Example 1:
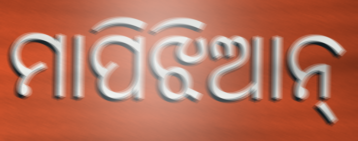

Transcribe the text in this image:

ମାପିଝିଆନ୍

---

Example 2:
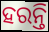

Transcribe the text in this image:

ହରନ୍ତି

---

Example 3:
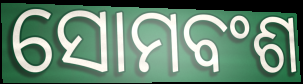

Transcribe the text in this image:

ସୋମବଂଶ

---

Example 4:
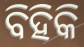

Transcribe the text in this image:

ବିହିକି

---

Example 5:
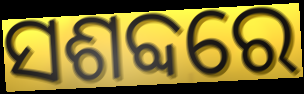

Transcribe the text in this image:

ସଶବ୍ଦରେ